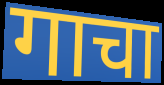
गाचा